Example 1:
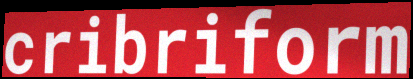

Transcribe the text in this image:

cribriform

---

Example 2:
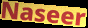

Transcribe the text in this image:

Naseer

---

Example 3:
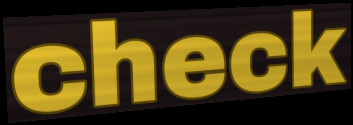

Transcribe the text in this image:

check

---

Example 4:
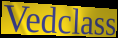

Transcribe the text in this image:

Vedclass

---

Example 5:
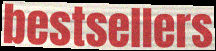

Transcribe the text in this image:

bestsellers